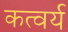
कत्वर्य